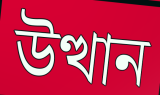
উত্থান